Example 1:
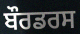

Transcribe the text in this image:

ਬੌਰਡਰਸ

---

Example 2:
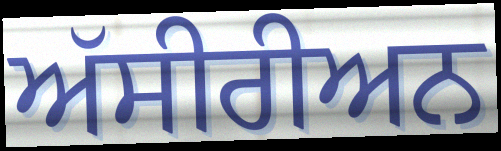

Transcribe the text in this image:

ਅੱਸੀਰੀਅਨ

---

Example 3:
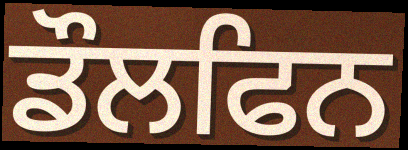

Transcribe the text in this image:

ਡੌਲਫਿਨ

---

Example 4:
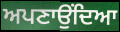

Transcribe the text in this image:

ਅਪਣਾਉਂਦਿਆ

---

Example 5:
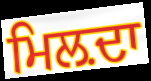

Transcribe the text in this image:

ਮਿਲ਼ਦਾ